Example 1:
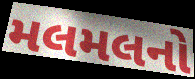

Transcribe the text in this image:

મલમલનો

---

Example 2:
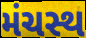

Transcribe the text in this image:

મંચસ્થ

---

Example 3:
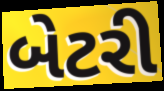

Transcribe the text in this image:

બેટરી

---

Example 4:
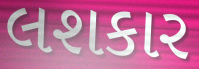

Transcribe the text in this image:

લશકાર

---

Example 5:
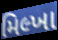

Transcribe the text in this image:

મિલ્ખા